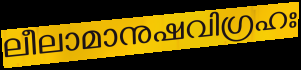
ലീലാമാനുഷവിഗ്രഹഃ